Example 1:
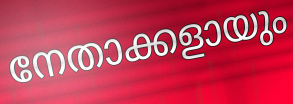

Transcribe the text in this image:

നേതാക്കളായും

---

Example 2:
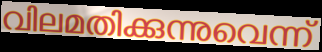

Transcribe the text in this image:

വിലമതിക്കുന്നുവെന്ന്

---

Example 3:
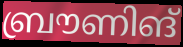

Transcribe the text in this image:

ബ്രൗണിങ്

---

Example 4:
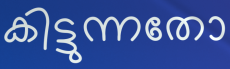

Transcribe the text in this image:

കിട്ടുന്നതോ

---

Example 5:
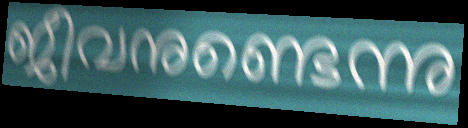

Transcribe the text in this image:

ജീവനുണ്ടെന്നു